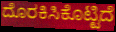
ದೊರಕಿಸಿಕೊಟ್ಟಿದೆ